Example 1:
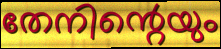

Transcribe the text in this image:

തേനിന്റെയും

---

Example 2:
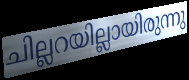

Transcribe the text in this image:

ചില്ലറയില്ലായിരുന്നു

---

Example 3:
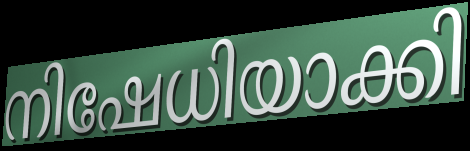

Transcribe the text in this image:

നിഷേധിയാക്കി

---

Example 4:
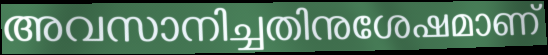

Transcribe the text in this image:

അവസാനിച്ചതിനുശേഷമാണ്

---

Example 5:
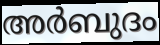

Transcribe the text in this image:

അർബുദം